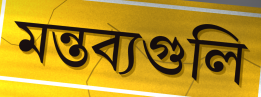
মন্তব্যগুলি